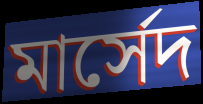
মার্সেদ